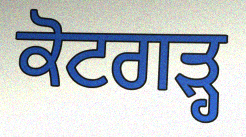
ਕੋਟਗੜ੍ਹ